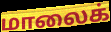
மாலைக்